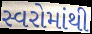
સ્વરોમાંથી